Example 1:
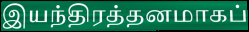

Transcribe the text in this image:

இயந்திரத்தனமாகப்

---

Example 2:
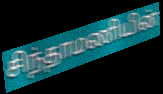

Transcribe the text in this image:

சிந்தாமணியின்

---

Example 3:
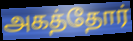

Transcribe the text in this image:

அகத்தோர்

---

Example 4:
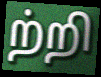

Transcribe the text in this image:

ற்றி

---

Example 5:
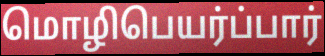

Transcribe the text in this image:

மொழிபெயர்ப்பார்